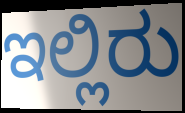
ಇಲ್ಲಿರು